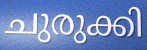
ചുരുക്കി